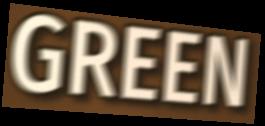
GREEN